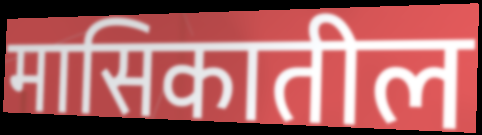
मासिकातील